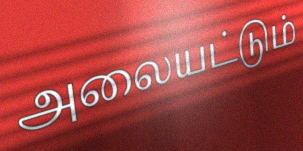
அலையட்டும்